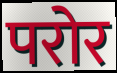
परोर